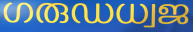
ഗരുഡധ്വജ